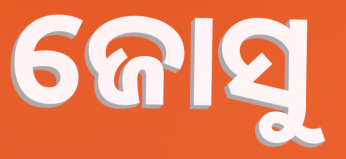
ଜୋସୁ